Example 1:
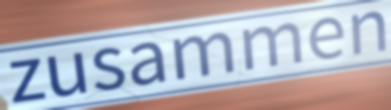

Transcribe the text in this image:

zusammen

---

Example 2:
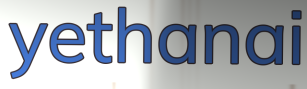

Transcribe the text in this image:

yethanai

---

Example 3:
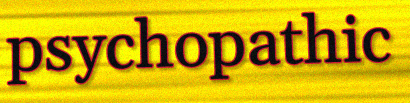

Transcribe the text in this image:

psychopathic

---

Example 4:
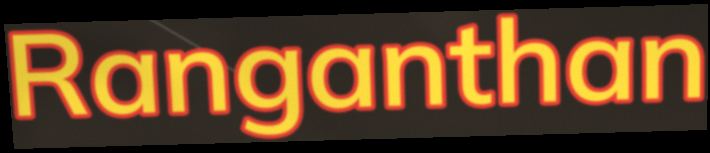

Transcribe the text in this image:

Ranganthan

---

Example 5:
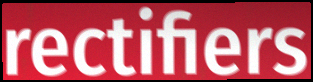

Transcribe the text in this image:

rectifiers